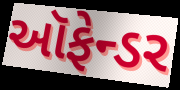
ઑફેન્ડર